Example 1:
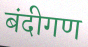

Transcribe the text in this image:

बंदीगण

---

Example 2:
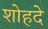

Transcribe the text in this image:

शोहदे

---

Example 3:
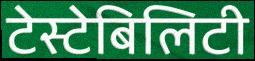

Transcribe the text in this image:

टेस्टेबिलिटी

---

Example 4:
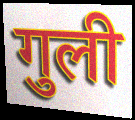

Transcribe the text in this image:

गुली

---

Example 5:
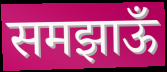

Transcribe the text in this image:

समझाऊँ